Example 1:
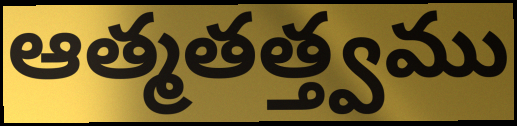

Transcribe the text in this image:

ఆత్మతత్త్వము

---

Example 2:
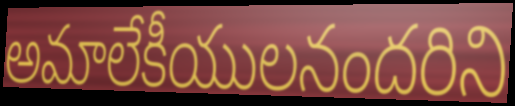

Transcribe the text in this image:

అమాలేకీయులనందరిని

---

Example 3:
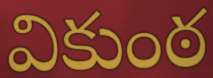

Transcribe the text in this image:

వికుంఠ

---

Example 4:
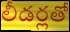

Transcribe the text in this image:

లీడర్లతో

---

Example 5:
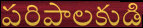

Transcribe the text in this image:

పరిపాలకుడి